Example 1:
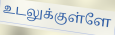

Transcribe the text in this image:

உடலுக்குள்ளே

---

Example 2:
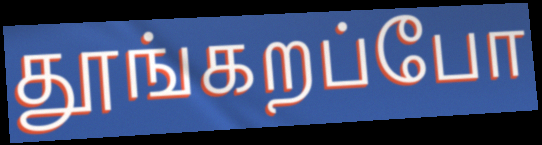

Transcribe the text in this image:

தூங்கறப்போ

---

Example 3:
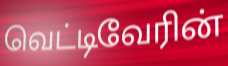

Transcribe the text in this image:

வெட்டிவேரின்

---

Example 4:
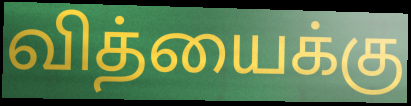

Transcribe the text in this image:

வித்யைக்கு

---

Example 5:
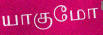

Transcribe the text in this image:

யாகுமோ